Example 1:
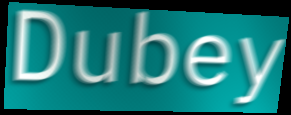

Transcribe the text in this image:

Dubey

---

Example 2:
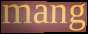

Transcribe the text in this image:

mang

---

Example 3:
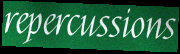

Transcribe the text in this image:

repercussions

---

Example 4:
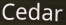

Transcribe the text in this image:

Cedar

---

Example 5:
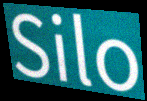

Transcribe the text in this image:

Silo